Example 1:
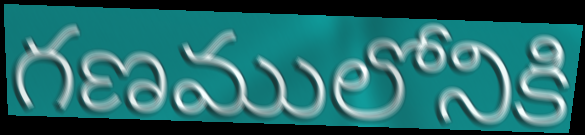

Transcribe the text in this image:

గణములోనికి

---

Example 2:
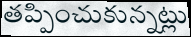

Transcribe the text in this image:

తప్పించుకున్నట్లు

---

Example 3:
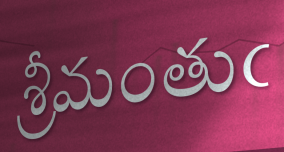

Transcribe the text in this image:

శ్రీమంతుఁ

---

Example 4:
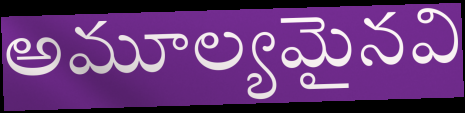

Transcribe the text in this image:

అమూల్యమైనవి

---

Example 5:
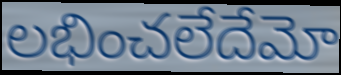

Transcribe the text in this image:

లభించలేదేమో